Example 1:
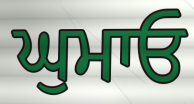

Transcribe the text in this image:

ਘੁਮਾਓ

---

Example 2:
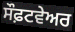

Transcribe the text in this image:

ਸੌਫ਼ਟਵੇਅਰ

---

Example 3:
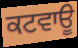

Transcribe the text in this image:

ਕਟਵਾਊ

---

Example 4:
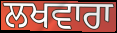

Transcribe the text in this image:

ਲਖਵਾਰਾ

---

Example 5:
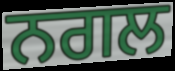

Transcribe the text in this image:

ਨਗਲ